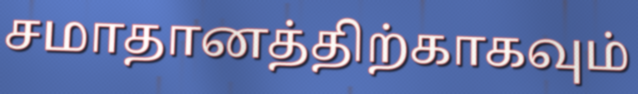
சமாதானத்திற்காகவும்